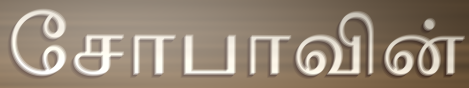
சோபாவின்